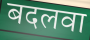
बदलवा